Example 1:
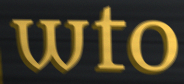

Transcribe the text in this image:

wto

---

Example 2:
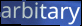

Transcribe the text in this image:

arbitary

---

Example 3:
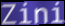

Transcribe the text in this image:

Zini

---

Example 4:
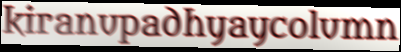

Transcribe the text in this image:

kiranupadhyaycolumn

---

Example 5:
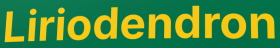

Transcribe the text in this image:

Liriodendron